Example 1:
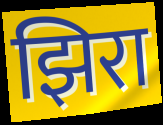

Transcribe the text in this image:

झिरा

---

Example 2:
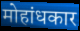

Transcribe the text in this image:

मोहांधकार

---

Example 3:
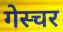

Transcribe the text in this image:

गेस्चर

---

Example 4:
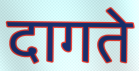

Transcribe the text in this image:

दागते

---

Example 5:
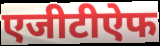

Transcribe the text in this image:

एजीटीऐफ